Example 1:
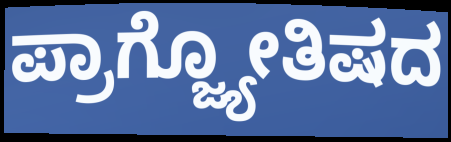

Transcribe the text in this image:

ಪ್ರಾಗ್ಜ್ಯೋತಿಷದ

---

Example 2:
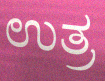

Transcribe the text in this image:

ಉತ್ರ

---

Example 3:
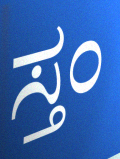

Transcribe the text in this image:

ಸ್ತಂ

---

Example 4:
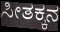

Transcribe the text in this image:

ಸೀತಕ್ಕನ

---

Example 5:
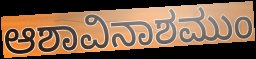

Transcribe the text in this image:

ಆಶಾವಿನಾಶಮುಂ